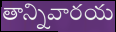
తాన్నివారయ